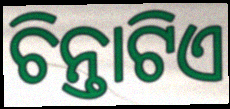
ଚିନ୍ତାଟିଏ